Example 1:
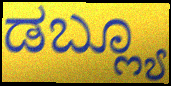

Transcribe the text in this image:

ಡಬ್ಲ್ಯೂ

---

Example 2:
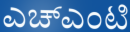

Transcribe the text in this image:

ಎಚ್ಎಂಟಿ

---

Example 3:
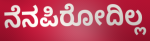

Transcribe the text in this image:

ನೆನಪಿರೋದಿಲ್ಲ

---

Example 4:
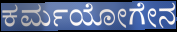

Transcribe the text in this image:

ಕರ್ಮಯೋಗೇನ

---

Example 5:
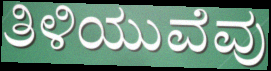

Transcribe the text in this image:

ತಿಳಿಯುವೆವು